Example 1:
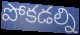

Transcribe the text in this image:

పోకడల్ని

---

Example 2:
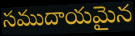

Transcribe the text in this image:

సముదాయమైన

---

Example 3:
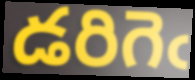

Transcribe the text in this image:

డరిగెఁ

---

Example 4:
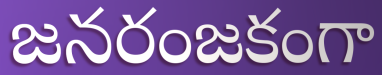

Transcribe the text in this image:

జనరంజకంగా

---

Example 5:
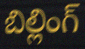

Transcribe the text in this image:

బిల్లింగ్